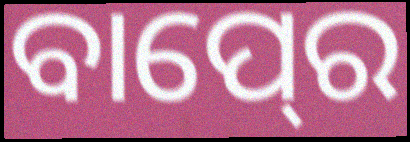
ବାପ୍‍ରେ